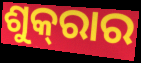
ଶୁକ୍‌ରାର